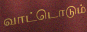
வாட்டொடும்